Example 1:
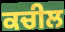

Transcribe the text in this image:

ਕਚੀਲ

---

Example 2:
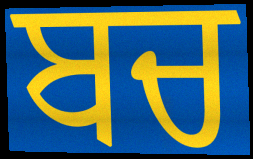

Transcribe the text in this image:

ਬਚ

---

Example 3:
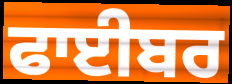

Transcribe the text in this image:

ਫਾਈਬਰ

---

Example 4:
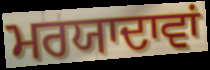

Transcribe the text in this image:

ਮਰਯਾਦਾਵਾਂ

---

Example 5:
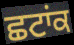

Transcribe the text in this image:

ਛਟਾਂਕ